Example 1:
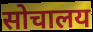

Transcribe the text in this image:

सोचालय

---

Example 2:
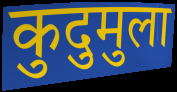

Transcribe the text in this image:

कुदुमुला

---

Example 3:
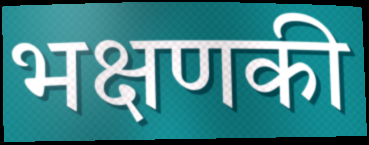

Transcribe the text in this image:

भक्षणकी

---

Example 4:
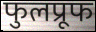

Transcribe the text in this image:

फुलप्रूफ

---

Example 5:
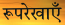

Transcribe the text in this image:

रूपरेखाएँ